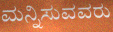
ಮನ್ನಿಸುವವರು